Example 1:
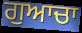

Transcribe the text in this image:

ਗੁਆਚਾ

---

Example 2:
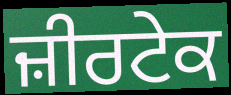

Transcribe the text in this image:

ਜ਼ੀਰਟੇਕ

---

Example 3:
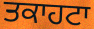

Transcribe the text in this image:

ਤਕਾਹਟਾ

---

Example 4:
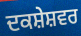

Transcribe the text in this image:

ਦਕਸ਼ੇਸ਼ਵਰ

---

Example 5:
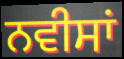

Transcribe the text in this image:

ਨਵੀਸਾਂ